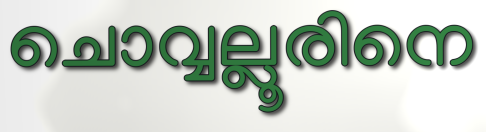
ചൊവ്വല്ലൂരിനെ